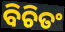
ବିଚିତଂ